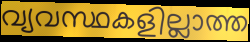
വ്യവസ്ഥകളില്ലാത്ത